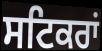
ਸਟਿਕਰਾਂ